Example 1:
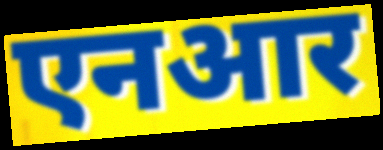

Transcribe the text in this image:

एनआर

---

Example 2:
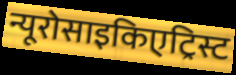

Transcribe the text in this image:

न्यूरोसाइकिएट्रिस्ट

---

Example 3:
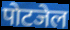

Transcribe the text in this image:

पोटजेल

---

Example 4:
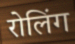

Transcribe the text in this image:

रोलिंग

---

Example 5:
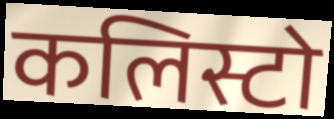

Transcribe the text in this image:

कलिस्टो